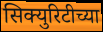
सिक्युरिटीच्या